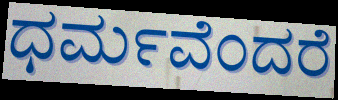
ಧರ್ಮವೆಂದರೆ